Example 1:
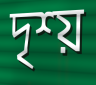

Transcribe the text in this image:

দৃশ্য়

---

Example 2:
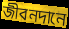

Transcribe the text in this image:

জীবনদানে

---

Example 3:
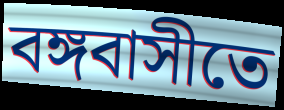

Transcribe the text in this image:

বঙ্গবাসীতে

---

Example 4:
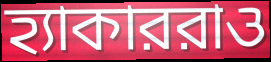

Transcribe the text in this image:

হ্যাকাররাও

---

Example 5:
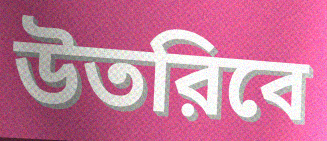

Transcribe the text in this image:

উতরিবে